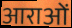
आराओं